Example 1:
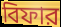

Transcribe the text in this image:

বিফার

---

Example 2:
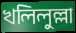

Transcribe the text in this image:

খলিলুল্লা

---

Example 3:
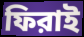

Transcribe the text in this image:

ফিরাই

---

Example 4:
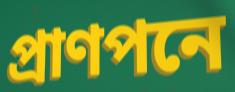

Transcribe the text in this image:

প্রাণপনে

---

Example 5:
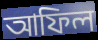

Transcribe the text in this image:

আফিল